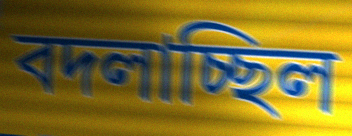
বদলাচ্ছিল